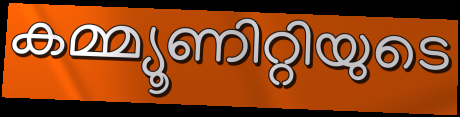
കമ്മ്യൂണിറ്റിയുടെ